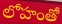
లోహంతో